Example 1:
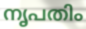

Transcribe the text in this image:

നൃപതിം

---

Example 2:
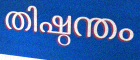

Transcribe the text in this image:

തിഷ്ഠന്തം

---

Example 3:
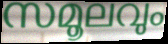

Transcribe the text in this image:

സമൂലവും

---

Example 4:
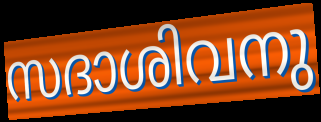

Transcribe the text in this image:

സദാശിവനു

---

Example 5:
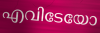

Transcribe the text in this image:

എവിടേയോ